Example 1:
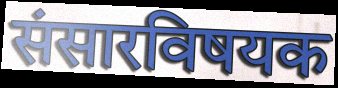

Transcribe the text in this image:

संसारविषयक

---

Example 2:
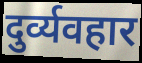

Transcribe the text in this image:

दुर्व्यवहार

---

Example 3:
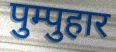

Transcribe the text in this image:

पुम्पुहार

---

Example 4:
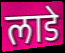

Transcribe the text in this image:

लाडे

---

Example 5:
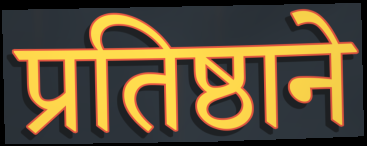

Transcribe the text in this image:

प्रतिष्ठाने